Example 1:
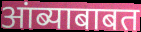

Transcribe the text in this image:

आंब्याबाबत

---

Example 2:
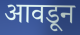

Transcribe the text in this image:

आवडून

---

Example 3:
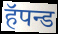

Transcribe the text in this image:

हॅपन्ड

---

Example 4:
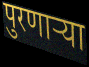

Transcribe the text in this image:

पुरणाऱ्या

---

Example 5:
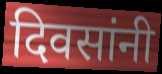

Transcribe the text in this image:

दिवसांनी